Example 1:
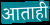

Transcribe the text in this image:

आताही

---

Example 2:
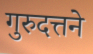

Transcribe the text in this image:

गुरुदत्तने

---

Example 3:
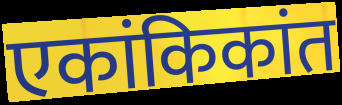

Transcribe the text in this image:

एकांकिकांत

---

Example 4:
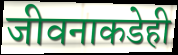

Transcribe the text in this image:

जीवनाकडेही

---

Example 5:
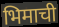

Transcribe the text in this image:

भिमाची